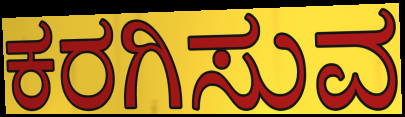
ಕರಗಿಸುವ